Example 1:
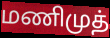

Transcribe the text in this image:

மணிமுத்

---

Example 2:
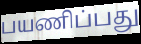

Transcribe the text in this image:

பயணிப்பது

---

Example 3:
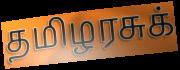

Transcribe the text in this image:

தமிழரசுக்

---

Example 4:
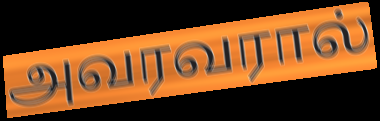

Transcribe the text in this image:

அவரவரால்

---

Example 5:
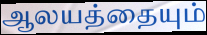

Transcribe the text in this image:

ஆலயத்தையும்